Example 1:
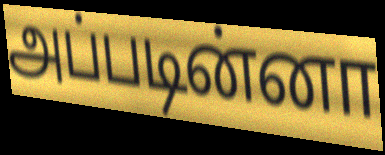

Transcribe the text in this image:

அப்படின்னா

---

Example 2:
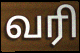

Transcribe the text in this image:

வரி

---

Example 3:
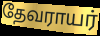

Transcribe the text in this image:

தேவராயர்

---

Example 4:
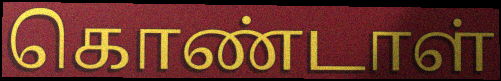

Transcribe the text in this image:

கொண்டாள்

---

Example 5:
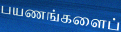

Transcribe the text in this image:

பயணங்களைப்